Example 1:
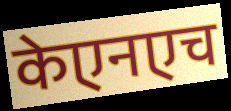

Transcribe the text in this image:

केएनएच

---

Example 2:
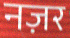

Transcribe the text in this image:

नज़र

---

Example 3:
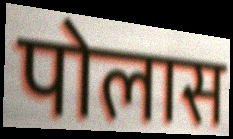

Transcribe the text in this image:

पोलास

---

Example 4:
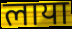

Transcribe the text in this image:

लाया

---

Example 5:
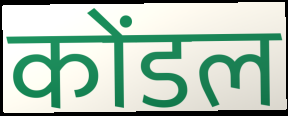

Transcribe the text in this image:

कोंडल